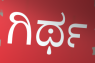
ಗಿರ್ಥ